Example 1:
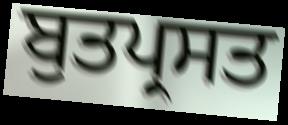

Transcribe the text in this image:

ਬੁਤਪ੍ਰਸਤ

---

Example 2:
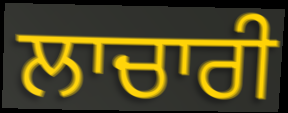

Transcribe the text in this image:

ਲਾਚਾਰੀ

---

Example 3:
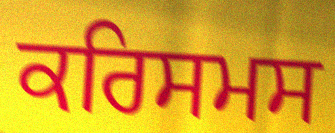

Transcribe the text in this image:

ਕਰਿਸਮਸ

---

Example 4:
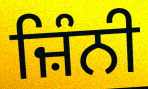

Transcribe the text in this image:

ਜ਼ਿੰਨੀ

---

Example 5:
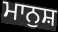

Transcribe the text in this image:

ਮਾਨੁਸ਼